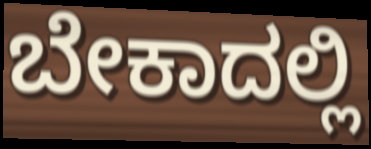
ಬೇಕಾದಲ್ಲಿ